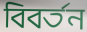
বিবৰ্তন